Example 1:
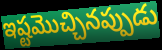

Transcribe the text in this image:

ఇష్టమొచ్చినప్పుడు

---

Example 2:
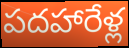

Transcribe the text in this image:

పదహారేళ్ల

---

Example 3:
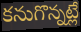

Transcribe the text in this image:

కనుగొన్నట్లే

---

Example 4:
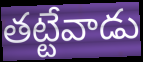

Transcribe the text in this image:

తట్టేవాడు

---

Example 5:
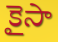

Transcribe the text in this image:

కైసా